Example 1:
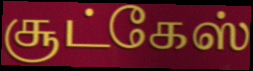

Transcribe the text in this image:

சூட்கேஸ்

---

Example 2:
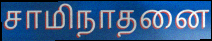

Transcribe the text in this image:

சாமிநாதனை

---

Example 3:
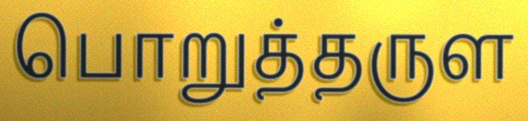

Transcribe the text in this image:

பொறுத்தருள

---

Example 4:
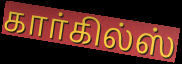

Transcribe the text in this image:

கார்கில்ஸ்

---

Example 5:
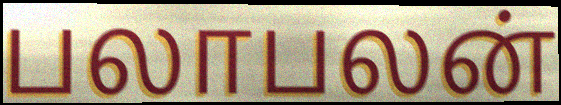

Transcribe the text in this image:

பலாபலன்